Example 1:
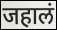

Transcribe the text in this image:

जहालं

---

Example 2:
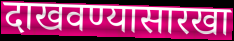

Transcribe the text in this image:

दाखवण्यासारखा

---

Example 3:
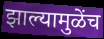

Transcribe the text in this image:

झाल्यामुळेंच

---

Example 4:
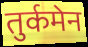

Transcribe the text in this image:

तुर्कमेन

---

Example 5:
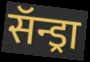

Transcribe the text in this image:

सॅन्ड्रा